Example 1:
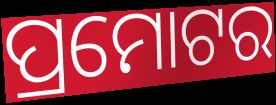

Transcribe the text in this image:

ପ୍ରମୋଟର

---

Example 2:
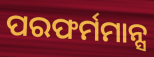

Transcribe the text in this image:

ପରଫର୍ମମାନ୍ସ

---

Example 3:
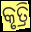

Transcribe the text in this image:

କୃତ୍ରି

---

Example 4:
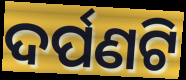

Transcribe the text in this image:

ଦର୍ପଣଟି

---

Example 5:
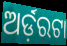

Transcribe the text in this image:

ଅର୍ଡ଼ରଟା